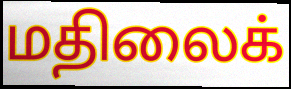
மதிலைக்